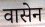
वासेन